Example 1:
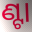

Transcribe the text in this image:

ଣ୍ଟା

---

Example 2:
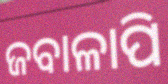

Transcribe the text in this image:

ଜବାଳାପି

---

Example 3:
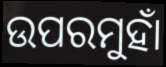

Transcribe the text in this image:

ଉପରମୁହାଁ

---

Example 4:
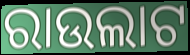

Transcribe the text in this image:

ରାଉଲାଟ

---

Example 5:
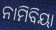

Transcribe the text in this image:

ନାମିବିୟା